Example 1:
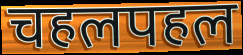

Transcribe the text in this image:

चहलपहल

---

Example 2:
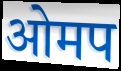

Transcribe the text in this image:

ओमप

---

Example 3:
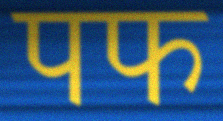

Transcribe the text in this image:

पफ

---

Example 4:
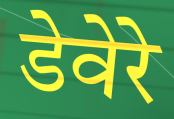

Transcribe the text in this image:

डेवेरे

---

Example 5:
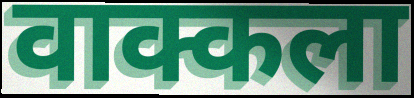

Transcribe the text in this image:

वाक्कला